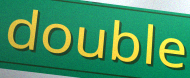
double